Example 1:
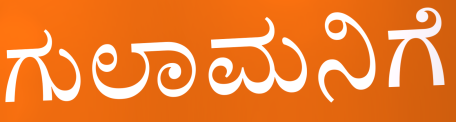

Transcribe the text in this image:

ಗುಲಾಮನಿಗೆ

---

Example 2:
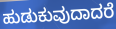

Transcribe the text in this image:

ಹುಡುಕುವುದಾದರೆ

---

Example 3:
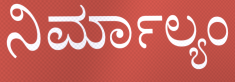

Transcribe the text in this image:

ನಿರ್ಮಾಲ್ಯಂ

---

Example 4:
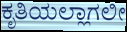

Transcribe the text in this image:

ಕೃತಿಯಲ್ಲಾಗಲೀ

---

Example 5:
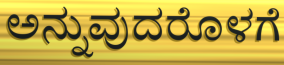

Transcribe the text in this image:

ಅನ್ನುವುದರೊಳಗೆ